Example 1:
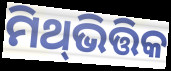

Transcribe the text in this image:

ମିଥ୍‍ଭିତ୍ତିକ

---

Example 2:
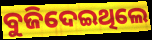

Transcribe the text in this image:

ବୁଜିଦେଇଥିଲେ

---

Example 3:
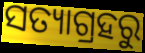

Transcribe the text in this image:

ସତ୍ୟାଗ୍ରହରୁ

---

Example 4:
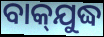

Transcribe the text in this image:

ବାକ୍‌ଯୁଦ୍ଧ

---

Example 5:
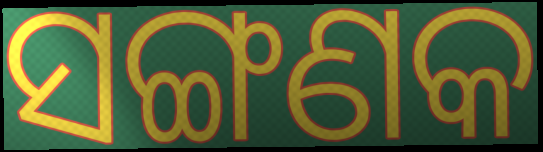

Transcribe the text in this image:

ସଙ୍ଗଣକ